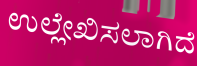
ಉಲ್ಲೇಖಿಸಲಾಗಿದೆ